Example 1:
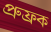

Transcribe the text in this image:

প্রুফ্রক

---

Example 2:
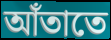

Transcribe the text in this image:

আঁতাতে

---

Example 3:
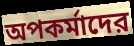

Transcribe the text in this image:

অপকর্মাদের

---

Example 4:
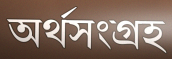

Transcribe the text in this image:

অর্থসংগ্রহ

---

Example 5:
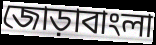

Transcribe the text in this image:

জোড়াবাংলা